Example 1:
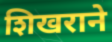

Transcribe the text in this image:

शिखराने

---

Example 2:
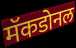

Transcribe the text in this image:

मॅकडोनल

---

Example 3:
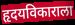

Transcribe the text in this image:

हृदयविकाराला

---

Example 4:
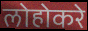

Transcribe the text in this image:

लोहोकरे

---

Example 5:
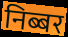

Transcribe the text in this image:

निब्बर